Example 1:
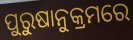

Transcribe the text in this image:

ପୁରୁଷାନୁକ୍ରମରେ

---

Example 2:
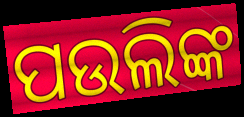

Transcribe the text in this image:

ପଉଲିଙ୍କ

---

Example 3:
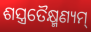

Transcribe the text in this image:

ଶସ୍ତ୍ରତୈକ୍ଷ୍ମଣ୍ୟମ୍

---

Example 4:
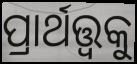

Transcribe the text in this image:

ପ୍ରାର୍ଥତ୍ତ୍ୱକୁ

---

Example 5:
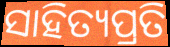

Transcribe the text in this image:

ସାହିତ୍ୟପ୍ରତି